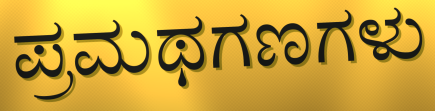
ಪ್ರಮಥಗಣಗಳು